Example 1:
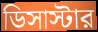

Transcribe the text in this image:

ডিসাস্টার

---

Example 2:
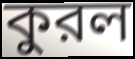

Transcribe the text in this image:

কুরল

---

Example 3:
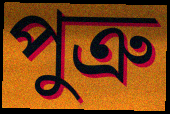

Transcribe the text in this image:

পুত্রু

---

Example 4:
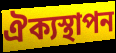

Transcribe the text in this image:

ঐক্যস্থাপন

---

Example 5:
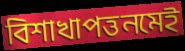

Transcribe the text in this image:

বিশাখাপত্তনমেই